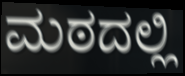
ಮಠದಲ್ಲಿ